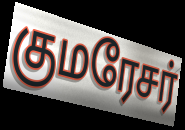
குமரேசர்